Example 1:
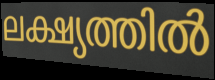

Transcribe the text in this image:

ലക്ഷ്യത്തിൽ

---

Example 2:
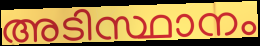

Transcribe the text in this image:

അടിസ്ഥാനം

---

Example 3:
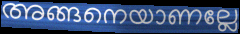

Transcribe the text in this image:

അങ്ങനെയാണല്ലേ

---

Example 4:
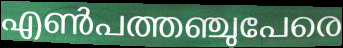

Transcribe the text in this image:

എൺപത്തഞ്ചുപേരെ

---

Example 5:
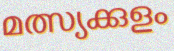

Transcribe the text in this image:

മത്സ്യക്കുളം